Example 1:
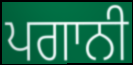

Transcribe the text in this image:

ਪਗਾਨੀ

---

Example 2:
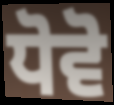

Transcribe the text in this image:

ਧੋਵੋ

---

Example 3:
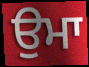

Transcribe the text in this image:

ਉਮਾ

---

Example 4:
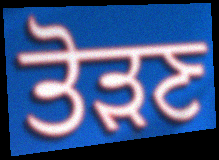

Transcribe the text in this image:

ਤੋੜਣ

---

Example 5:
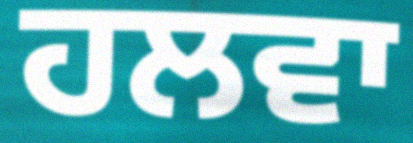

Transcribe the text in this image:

ਹਲਵਾ